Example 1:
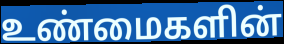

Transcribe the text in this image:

உண்மைகளின்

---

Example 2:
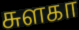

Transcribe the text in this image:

சுளகா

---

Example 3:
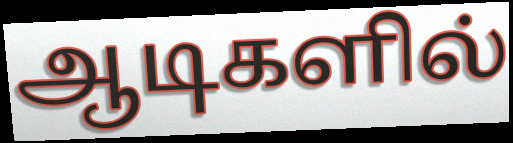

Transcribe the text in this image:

ஆடிகளில்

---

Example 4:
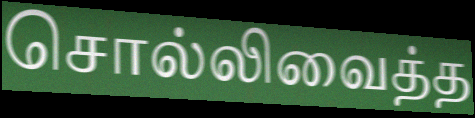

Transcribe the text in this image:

சொல்லிவைத்த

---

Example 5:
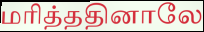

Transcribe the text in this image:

மரித்ததினாலே